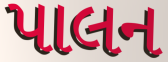
પાલન